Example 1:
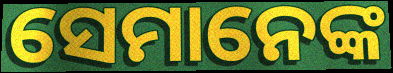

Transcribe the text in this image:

ସେମାନେଙ୍କ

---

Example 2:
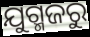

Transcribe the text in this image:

ଯୁଗ୍ମଜରୁ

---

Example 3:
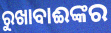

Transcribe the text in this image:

ରୁଖାବାଈଙ୍କର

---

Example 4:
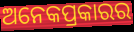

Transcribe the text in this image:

ଅନେକପ୍ରକାରର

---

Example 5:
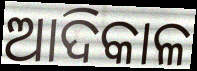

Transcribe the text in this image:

ଆଦିକାଳ